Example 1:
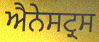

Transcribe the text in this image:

ਐਨੇਸਟ੍ਰਸ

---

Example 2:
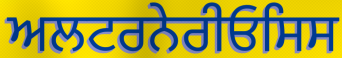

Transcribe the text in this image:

ਅਲਟਰਨੇਰੀਓਸਿਸ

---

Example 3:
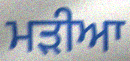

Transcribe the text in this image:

ਮਡ਼ੀਆ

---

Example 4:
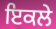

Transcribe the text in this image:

ਇਕਲੇ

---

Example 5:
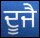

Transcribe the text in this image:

ਦੂਜੈ